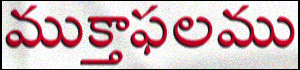
ముక్తాఫలము